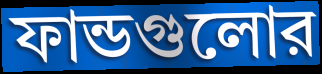
ফান্ডগুলোর